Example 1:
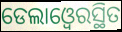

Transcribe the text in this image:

ଡେଲାଓ୍ବେରସ୍ଥିତ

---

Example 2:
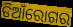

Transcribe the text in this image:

ଡିଆଁରୋଗର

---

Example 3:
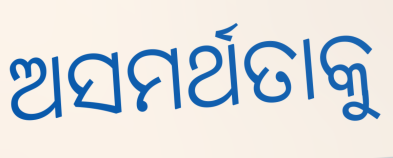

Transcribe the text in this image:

ଅସମର୍ଥତାକୁ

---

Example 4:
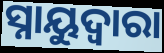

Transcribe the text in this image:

ସ୍ନାୟୁଦ୍ଵାରା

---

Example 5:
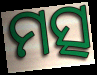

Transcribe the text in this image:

ମତ୍ସ